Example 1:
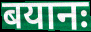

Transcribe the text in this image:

बयानः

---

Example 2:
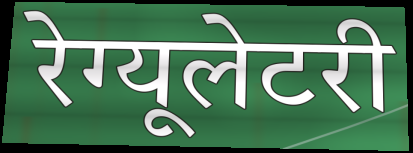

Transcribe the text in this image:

रेग्यूलेटरी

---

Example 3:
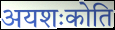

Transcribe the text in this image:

अयशःकोति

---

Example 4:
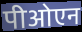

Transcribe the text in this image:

पीओएन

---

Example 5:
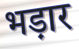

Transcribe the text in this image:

भड़ार